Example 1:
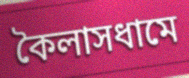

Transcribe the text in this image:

কৈলাসধামে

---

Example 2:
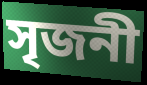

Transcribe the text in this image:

সৃজনী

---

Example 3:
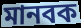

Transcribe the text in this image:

মানবক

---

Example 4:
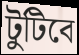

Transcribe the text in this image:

টুটিবে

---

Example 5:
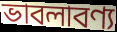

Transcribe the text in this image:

ভাবলাবণ্য